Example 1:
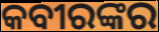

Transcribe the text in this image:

କବୀରଙ୍କର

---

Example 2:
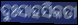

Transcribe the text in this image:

ଦୁଃସାହସିକତା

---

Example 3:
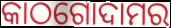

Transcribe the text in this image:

କାଠଗୋଦାମର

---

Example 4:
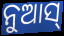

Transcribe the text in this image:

ନୁଆସ୍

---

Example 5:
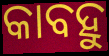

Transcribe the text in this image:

କାବହୁ